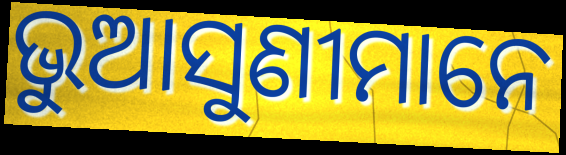
ଭୁଆସୁଣୀମାନେ